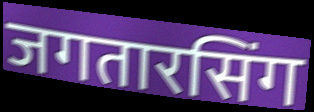
जगतारसिंग